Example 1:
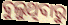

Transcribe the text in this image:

ବୁଲୁଥିବାରୁ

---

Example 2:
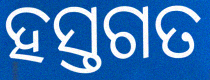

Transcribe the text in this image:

ହସ୍ତଗତ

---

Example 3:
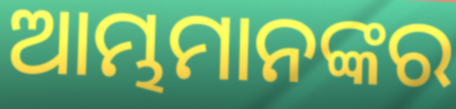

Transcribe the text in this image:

ଆମ୍ଭମାନଙ୍କର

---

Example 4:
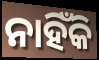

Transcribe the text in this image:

ନାହିଁକି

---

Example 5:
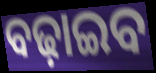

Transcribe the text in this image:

ବଢ଼ାଇବ